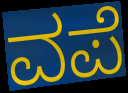
ವಪೆ